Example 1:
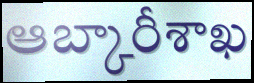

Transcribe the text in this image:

ఆబ్కారీశాఖ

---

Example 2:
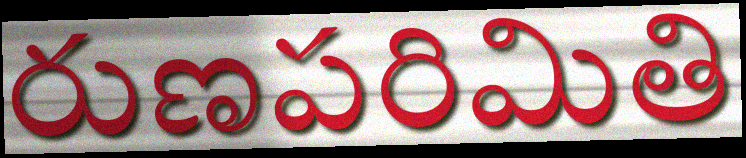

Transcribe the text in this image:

రుణపరిమితి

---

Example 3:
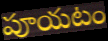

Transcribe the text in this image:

పూయటం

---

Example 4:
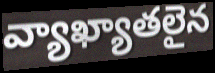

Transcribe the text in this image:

వ్యాఖ్యాతలైన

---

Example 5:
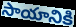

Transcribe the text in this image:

సాయానికి